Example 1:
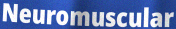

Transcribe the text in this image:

Neuromuscular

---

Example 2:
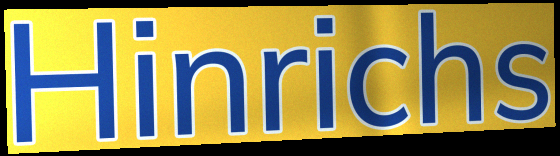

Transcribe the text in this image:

Hinrichs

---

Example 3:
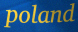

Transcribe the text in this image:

poland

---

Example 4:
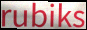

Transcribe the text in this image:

rubiks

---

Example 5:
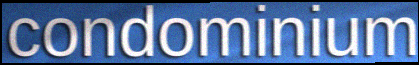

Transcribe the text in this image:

condominium